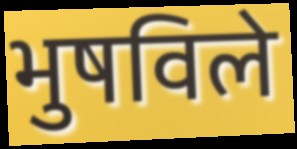
भुषविले